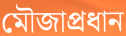
মৌজাপ্রধান